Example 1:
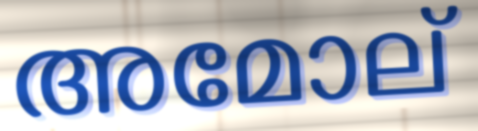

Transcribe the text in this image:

അമോല്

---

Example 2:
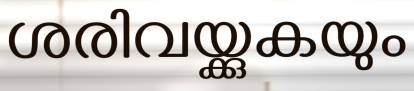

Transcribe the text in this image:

ശരിവയ്ക്കുകയും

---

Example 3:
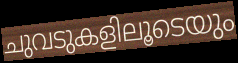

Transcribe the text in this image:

ചുവടുകളിലൂടെയും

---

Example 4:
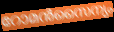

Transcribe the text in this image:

റോമൻസൈന്യം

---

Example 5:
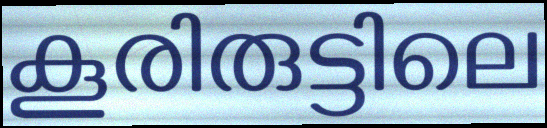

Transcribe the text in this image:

കൂരിരുട്ടിലെ